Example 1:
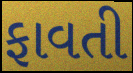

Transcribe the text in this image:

ફાવતી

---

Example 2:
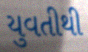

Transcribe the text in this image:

યુવતીથી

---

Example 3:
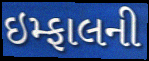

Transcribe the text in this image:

ઇમ્ફાલની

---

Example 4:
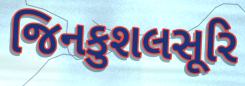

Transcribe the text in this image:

જિનકુશલસૂરિ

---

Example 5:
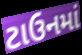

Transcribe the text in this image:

ટાઉનમાં